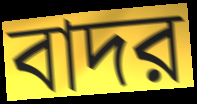
বাদর